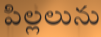
పిల్లలును